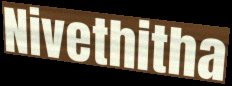
Nivethitha